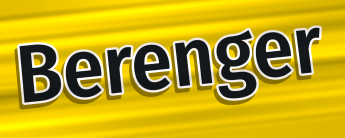
Berenger